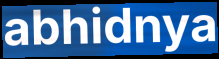
abhidnya